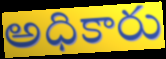
అధికారు